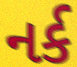
નર્ક